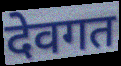
देवगत